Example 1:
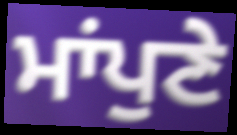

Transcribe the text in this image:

ਮਾਂਪੁਣੇ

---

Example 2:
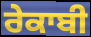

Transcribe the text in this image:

ਰੇਕਾਬੀ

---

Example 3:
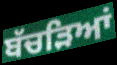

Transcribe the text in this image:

ਬੱਚੜਿਆਂ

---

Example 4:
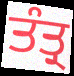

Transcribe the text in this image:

ਤੰਤ੍ਰ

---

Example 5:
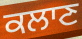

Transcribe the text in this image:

ਕਲਾਣ